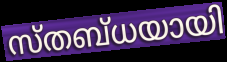
സ്തബ്ധയായി